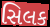
સિલક